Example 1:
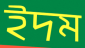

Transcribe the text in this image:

ইদম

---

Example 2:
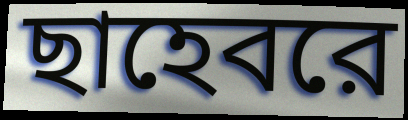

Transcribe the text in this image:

ছাহেবরে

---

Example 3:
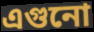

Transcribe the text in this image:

এগুনো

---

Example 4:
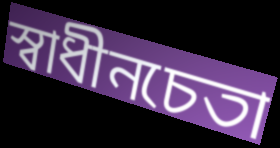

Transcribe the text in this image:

স্বাধীনচেতা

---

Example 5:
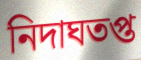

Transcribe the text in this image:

নিদাঘতপ্ত